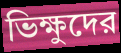
ভিক্ষুদের